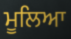
ਮੂਲਿਆ